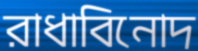
রাধাবিনোদ